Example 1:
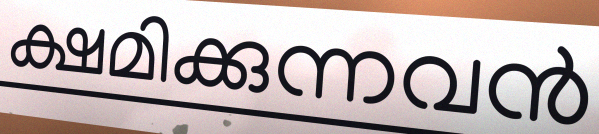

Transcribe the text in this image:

ക്ഷമിക്കുന്നവൻ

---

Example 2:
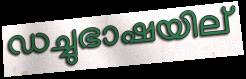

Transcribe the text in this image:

ഡച്ചുഭാഷയില്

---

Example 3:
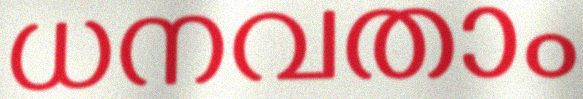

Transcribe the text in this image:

ധനവതാം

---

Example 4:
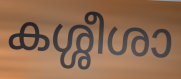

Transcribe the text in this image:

കശ്ശീശാ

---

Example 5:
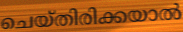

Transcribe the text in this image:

ചെയ്തിരിക്കയാൽ